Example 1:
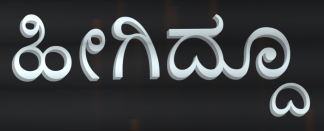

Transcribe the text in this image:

ಹೀಗಿದ್ದೂ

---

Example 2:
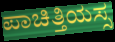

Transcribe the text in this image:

ಪಾಚಿತ್ತಿಯಸ್ಸ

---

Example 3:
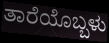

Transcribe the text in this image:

ತಾರೆಯೊಬ್ಬಳು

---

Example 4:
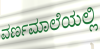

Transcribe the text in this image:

ವರ್ಣಮಾಲೆಯಲ್ಲಿ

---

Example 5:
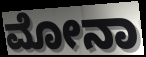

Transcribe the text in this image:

ಮೋನಾ